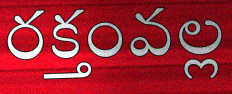
రక్తంవల్ల